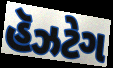
હૅઝટેગ